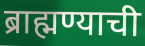
ब्राह्मण्याची